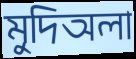
মুদিঅলা